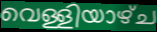
വെള്ളിയാഴ്‌ച